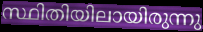
സ്ഥിതിയിലായിരുന്നു